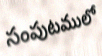
సంపుటములో